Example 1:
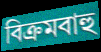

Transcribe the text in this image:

বিক্রমবাহু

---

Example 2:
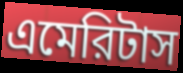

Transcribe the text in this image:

এমেরিটাস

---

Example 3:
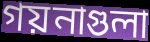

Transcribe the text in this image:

গয়নাগুলা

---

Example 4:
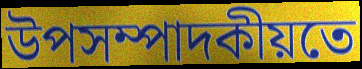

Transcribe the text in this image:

উপসম্পাদকীয়তে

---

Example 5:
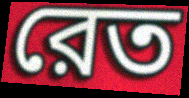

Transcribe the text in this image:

রেত